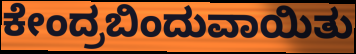
ಕೇಂದ್ರಬಿಂದುವಾಯಿತು